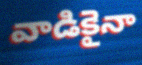
వాడికైనా